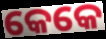
କେକେ